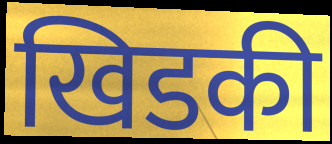
खिडकी